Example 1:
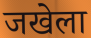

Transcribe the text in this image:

जखेला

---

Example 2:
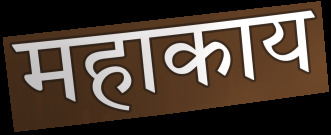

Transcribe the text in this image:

महाकाय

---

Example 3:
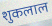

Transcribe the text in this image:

शुकलाल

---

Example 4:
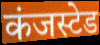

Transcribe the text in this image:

कंजस्टेड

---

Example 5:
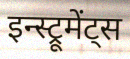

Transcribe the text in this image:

इन्स्ट्रूमेंट्स